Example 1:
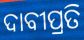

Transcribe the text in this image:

ଦାବୀପ୍ରତି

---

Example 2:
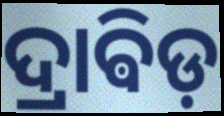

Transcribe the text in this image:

ଦ୍ରାଵିଡ଼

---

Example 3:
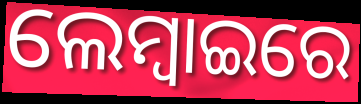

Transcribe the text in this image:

ଲେମ୍ବାଇରେ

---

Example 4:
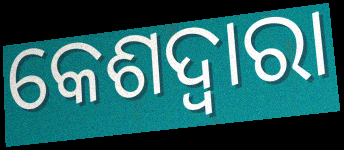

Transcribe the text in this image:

କେଶଦ୍ବାରା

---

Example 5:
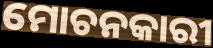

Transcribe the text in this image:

ମୋଚନକାରୀ